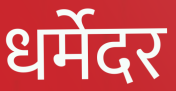
धर्मेदर